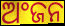
ଅଂଜନ